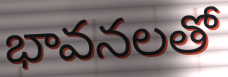
భావనలతో